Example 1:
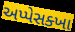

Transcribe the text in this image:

અપ્પેસક્ખા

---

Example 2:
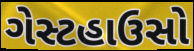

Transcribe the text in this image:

ગેસ્ટહાઉસો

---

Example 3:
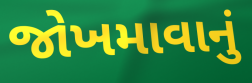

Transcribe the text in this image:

જોખમાવાનું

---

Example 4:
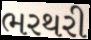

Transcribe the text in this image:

ભરથરી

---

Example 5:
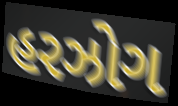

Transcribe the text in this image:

હરઝોગ